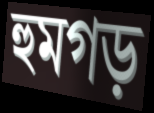
হুমগড়